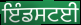
ਇੰਡਸਟਈ